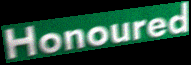
Honoured